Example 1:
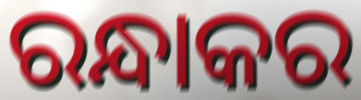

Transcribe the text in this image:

ରନ୍ଧାକର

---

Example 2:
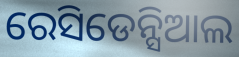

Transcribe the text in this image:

ରେସିଡେନ୍ସିଆଲ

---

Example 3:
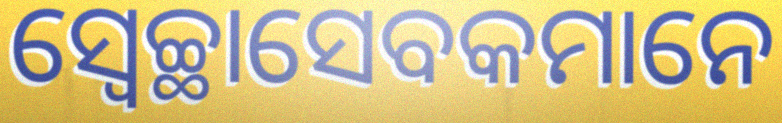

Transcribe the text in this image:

ସ୍ୱେଚ୍ଛାସେବକମାନେ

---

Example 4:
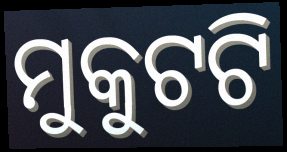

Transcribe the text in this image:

ମୁକୁଟଟି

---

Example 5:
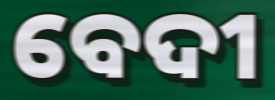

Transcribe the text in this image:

ବେଦୀ